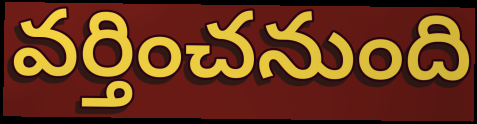
వర్తించనుంది